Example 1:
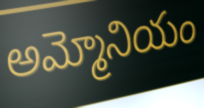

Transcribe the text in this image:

అమ్మోనియం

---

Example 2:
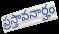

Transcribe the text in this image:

ప్రస్తావనార్హం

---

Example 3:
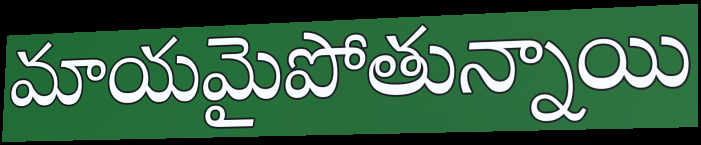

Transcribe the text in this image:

మాయమైపోతున్నాయి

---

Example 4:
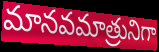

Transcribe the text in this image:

మానవమాత్రునిగా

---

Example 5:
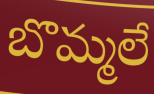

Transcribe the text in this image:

బొమ్మలే